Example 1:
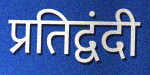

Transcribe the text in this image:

प्रतिद्वंदी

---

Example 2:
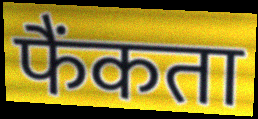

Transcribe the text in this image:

फैंकता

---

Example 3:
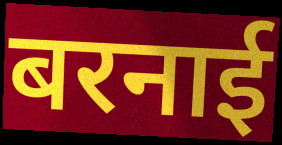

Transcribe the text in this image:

बरनाई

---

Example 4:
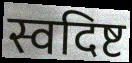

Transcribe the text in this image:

स्वदिष्ट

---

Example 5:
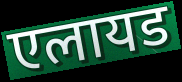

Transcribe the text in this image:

एलायड